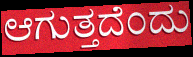
ಆಗುತ್ತದೆಂದು